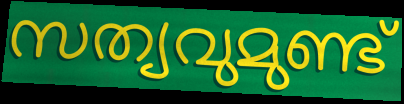
സത്യവുമുണ്ട്